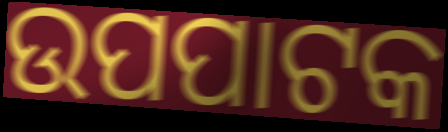
ଉପପାଟକ